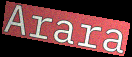
Arara